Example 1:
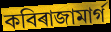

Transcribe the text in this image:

কবিৰাজামাৰ্গ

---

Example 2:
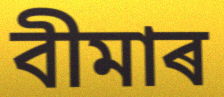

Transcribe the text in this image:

বীমাৰ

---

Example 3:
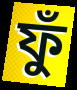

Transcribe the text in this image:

ফুঁ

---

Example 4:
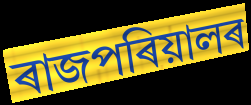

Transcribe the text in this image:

ৰাজপৰিয়ালৰ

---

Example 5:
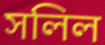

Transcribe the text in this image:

সলিল